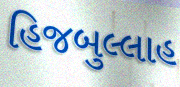
હિજબુલ્લાહ